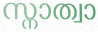
സ്നാത്വാ